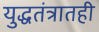
युद्धतंत्रातही